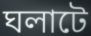
ঘলাটে